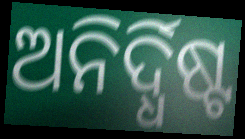
ଅନିର୍ଦ୍ଧିଷ୍ଟ